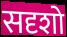
सदृशो